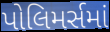
પોલિમર્સમાં